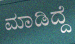
ಮಾಡಿದ್ದೆ